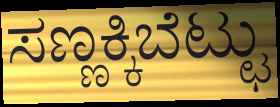
ಸಣ್ಣಕ್ಕಿಬೆಟ್ಟು